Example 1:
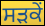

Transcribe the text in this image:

ਸੜਕੇਂ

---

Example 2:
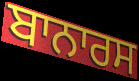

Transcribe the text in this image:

ਬਾਨਾਰਸ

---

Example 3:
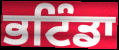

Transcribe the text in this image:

ਭਟਿੰਡਾ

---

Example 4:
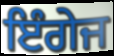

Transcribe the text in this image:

ਇੰਗੇਜ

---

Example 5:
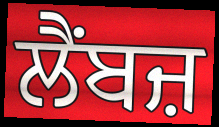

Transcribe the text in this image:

ਲੈਂਬਜ਼